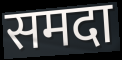
समदा